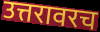
उत्तरावरच